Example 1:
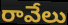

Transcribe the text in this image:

రావేలు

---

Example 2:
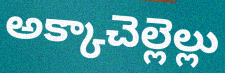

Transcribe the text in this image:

అక్కాచెల్లెల్లు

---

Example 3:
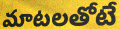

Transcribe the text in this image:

మాటలతోటే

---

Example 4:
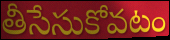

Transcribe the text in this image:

తీసేసుకోవటం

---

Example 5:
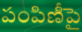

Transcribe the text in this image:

పంపిణీపై